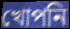
খোপনি